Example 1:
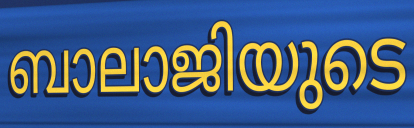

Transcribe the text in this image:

ബാലാജിയുടെ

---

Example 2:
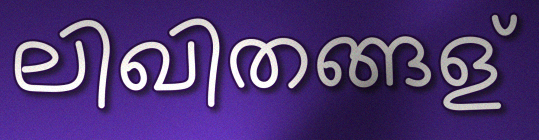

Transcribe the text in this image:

ലിഖിതങ്ങള്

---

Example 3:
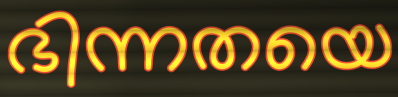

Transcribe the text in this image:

ഭിന്നതയെ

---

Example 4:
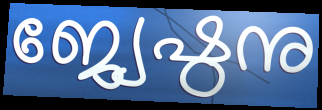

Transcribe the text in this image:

ജ്യേഷ്ഠനു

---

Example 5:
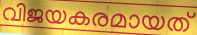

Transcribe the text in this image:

വിജയകരമായത്